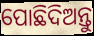
ପୋଛିଦିଅନ୍ତୁ